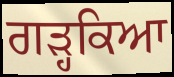
ਗੜ੍ਹਕਿਆ